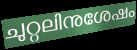
ചുറ്റലിനുശേഷം